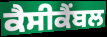
ਕੈਸੀਕੈਂਬਲ